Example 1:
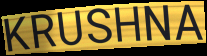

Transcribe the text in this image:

KRUSHNA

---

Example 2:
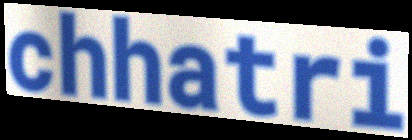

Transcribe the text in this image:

chhatri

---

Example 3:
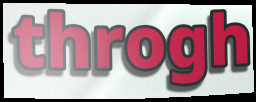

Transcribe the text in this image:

throgh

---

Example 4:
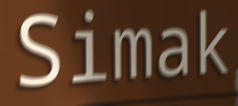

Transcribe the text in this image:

Simak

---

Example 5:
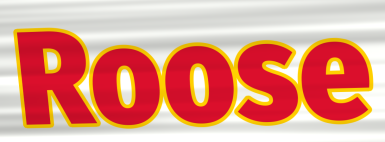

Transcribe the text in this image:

Roose